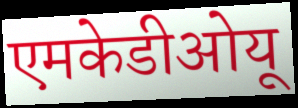
एमकेडीओयू